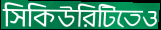
সিকিউরিটিতেও